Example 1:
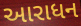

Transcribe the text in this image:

આરાધન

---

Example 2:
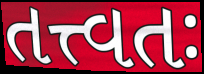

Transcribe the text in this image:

તત્ત્વતઃ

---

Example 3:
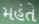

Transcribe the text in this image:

મહંતે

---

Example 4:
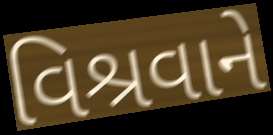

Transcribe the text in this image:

વિશ્રવાને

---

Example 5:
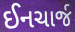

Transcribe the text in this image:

ઈનચાર્જ